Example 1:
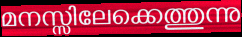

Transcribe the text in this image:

മനസ്സിലേക്കെത്തുന്നു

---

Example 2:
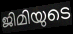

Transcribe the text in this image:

ജിമിയുടെ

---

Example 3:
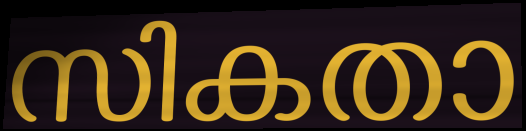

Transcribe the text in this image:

സികതാ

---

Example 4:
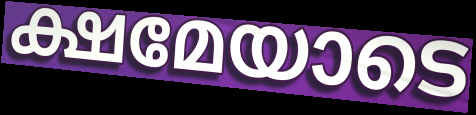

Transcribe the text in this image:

ക്ഷമേയാടെ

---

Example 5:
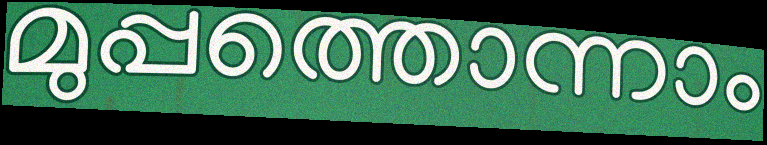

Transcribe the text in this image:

മുപ്പത്തൊന്നാം